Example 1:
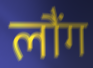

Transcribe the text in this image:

लौंग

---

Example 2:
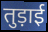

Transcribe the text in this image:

तुड़ाई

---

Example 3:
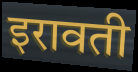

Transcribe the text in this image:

इरावती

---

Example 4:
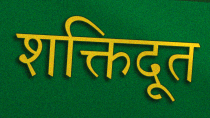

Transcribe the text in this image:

शक्तिदूत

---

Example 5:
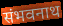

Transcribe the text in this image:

संभवनाथ